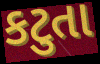
કટુતા